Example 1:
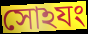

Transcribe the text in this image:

সোঽযং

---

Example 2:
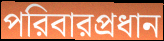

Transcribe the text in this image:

পরিবারপ্রধান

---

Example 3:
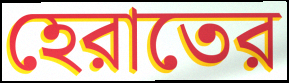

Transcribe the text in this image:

হেরাতের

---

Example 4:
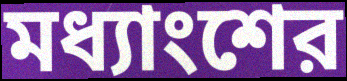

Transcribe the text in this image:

মধ্যাংশের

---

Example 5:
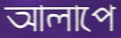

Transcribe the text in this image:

আলাপে